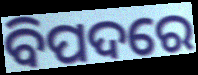
ବିପଦରେ